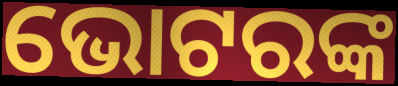
ଭୋଟରଙ୍କ